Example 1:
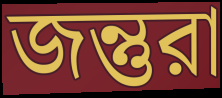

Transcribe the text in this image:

জন্তুরা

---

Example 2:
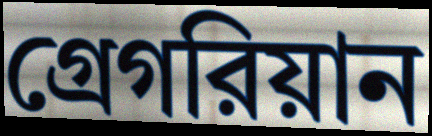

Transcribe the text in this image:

গ্রেগরিয়ান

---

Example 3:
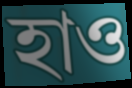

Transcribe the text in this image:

হাও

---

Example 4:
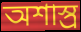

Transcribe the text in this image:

অশাস্ত্র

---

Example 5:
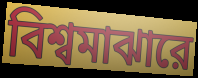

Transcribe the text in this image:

বিশ্বমাঝারে